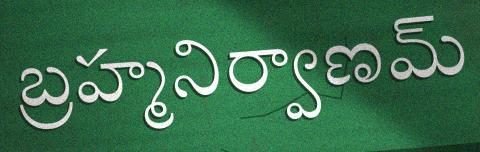
బ్రహ్మనిర్వాణమ్